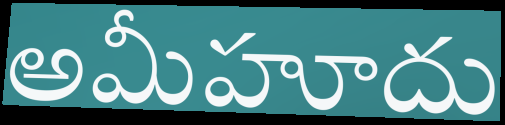
అమీహూదు